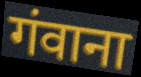
गंवाना